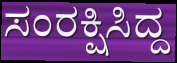
ಸಂರಕ್ಷಿಸಿದ್ದ